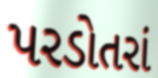
પરડોતરાં